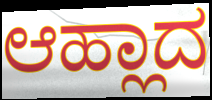
ಆಹ್ಲಾದ